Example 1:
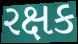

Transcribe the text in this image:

રક્ષક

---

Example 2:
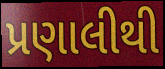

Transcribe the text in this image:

પ્રણાલીથી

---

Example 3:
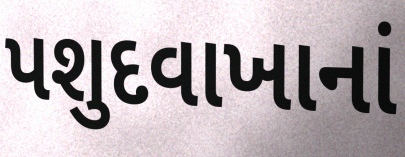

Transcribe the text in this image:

પશુદવાખાનાં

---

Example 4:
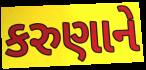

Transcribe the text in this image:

કરુણાને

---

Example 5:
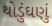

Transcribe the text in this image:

થોડુંઘણું